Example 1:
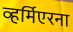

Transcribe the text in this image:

व्हर्मिएरना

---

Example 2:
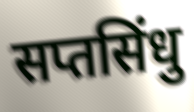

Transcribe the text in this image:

सप्तसिंधु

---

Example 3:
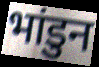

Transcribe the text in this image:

भांडुन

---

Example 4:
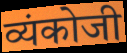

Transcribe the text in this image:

व्यंकोजी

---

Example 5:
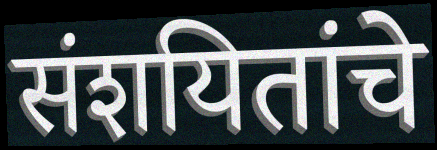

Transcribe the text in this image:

संशयितांचे